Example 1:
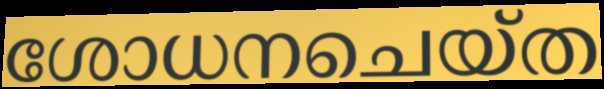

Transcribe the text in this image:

ശോധനചെയ്ത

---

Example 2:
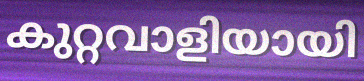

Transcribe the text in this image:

കുറ്റവാളിയായി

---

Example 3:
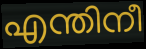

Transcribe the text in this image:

എന്തിനീ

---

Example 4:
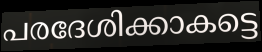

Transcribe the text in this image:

പരദേശിക്കാകട്ടെ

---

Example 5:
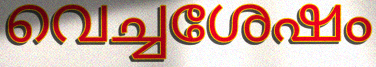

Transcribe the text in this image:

വെച്ചശേഷം